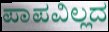
ಪಾಪವಿಲ್ಲದ